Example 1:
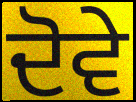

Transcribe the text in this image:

ਦੋਵੇ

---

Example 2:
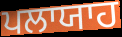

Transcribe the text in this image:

ਪਲਾਯਾਹ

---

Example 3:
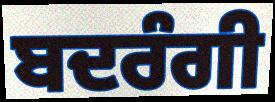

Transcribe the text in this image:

ਬਦਰੰਗੀ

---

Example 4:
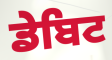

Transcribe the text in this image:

ਡੇਬਿਟ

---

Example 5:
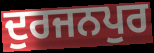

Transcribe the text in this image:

ਦੁਰਜਨਪੁਰ